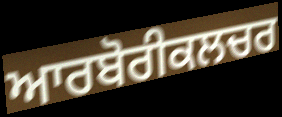
ਆਰਬੋਰੀਕਲਚਰ